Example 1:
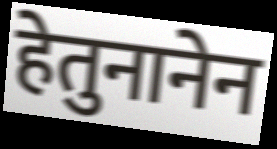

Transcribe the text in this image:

हेतुनानेन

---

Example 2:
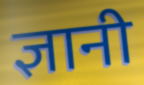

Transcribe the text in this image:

ज्ञानी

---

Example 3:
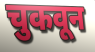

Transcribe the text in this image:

चुकवून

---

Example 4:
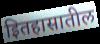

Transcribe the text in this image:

इितहासातील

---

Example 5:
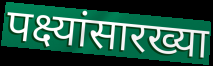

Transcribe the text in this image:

पक्ष्यांसारख्या